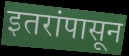
इतरांपासून